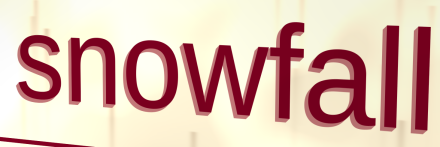
snowfall